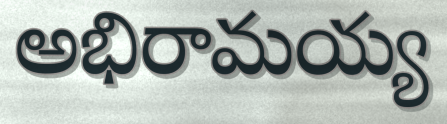
అభిరామయ్య